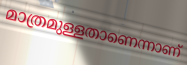
മാത്രമുള്ളതാണെന്നാണ്